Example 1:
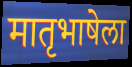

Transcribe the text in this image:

मातृभाषेला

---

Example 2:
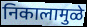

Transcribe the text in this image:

निकालामुळे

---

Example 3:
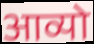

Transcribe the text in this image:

आव्यो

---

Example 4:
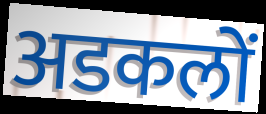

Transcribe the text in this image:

अडकलों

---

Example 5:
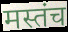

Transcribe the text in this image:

मस्तंच